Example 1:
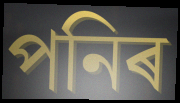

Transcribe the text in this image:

পনিৰ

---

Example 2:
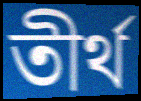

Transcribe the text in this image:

তীৰ্থ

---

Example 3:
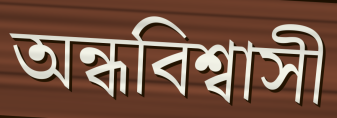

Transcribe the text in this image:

অন্ধবিশ্বাসী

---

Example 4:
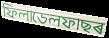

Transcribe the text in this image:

ফিলাডেলফাছৰ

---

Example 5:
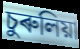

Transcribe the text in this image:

চুৰুলিয়া